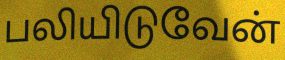
பலியிடுவேன்